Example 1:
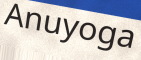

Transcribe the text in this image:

Anuyoga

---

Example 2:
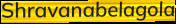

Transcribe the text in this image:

Shravanabelagola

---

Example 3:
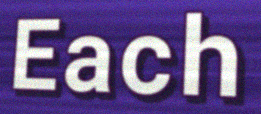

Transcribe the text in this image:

Each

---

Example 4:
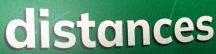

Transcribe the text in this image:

distances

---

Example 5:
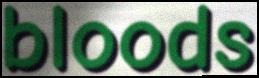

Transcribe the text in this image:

bloods